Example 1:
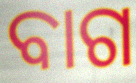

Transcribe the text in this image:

ବାଗ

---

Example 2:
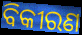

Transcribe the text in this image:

ବିକୀରଣ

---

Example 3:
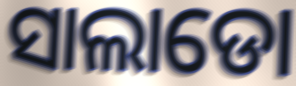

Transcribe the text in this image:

ସାଲାଡୋ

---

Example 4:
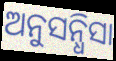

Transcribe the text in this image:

ଅନୁସନ୍ଧିସା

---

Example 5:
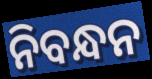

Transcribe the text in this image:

ନିବନ୍ଧନ